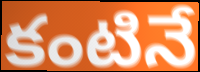
కంటినే